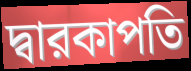
দ্বারকাপতি